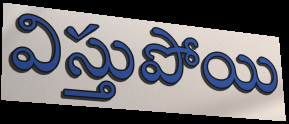
విస్తుపోయి